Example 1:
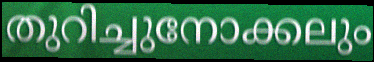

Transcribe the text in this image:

തുറിച്ചുനോക്കലും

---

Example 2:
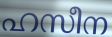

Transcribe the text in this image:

ഹസീന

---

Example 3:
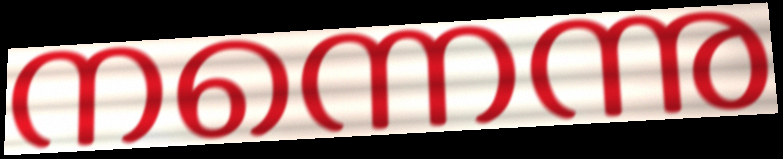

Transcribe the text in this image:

നന്നെന്നു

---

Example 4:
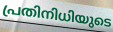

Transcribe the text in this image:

പ്രതിനിധിയുടെ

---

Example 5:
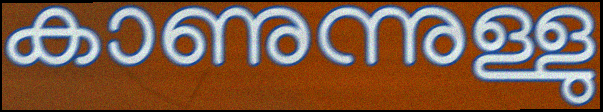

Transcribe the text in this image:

കാണുന്നുള്ളു